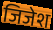
जिजेश